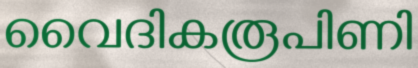
വൈദികരൂപിണി